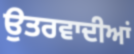
ਉਤਰਵਾਦੀਆਂ